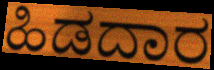
ಹಿಡದಾರ